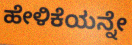
ಹೇಳಿಕೆಯನ್ನೇ